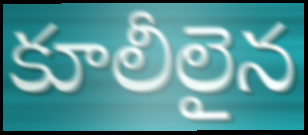
కూలీలైన